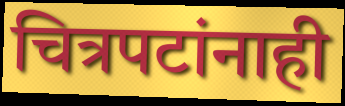
चित्रपटांनाही